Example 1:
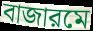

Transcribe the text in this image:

বাজারমে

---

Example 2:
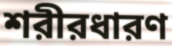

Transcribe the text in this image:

শরীরধারণ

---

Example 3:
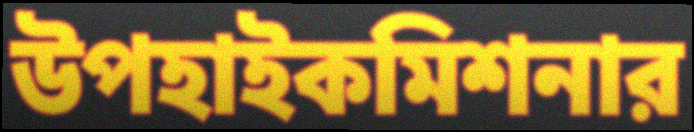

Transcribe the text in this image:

উপহাইকমিশনার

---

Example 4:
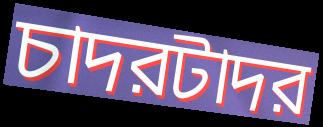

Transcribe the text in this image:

চাদরটাদর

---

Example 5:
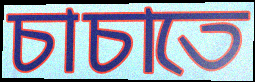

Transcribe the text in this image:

চাচাতে